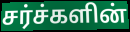
சர்ச்களின்